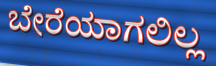
ಬೇರೆಯಾಗಲಿಲ್ಲ